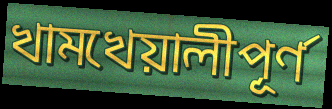
খামখেয়ালীপূর্ণ